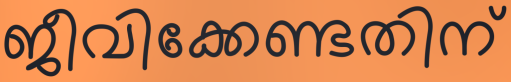
ജീവിക്കേണ്ടതിന്